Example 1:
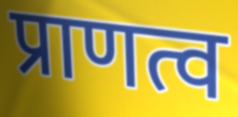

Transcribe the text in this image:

प्राणत्व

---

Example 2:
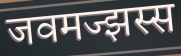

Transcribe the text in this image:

जवमज्झस्स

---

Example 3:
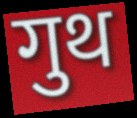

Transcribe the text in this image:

गुथ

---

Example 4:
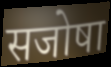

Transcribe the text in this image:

सजोषा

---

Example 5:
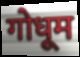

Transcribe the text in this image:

गोधूम